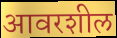
आवरशील